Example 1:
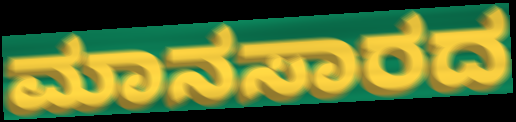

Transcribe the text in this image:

ಮಾನಸಾರದ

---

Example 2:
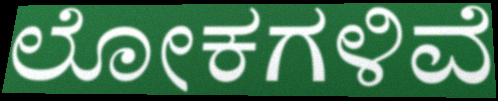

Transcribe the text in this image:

ಲೋಕಗಳಿವೆ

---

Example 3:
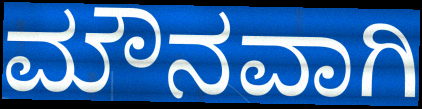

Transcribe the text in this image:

ಮೌನವಾಗಿ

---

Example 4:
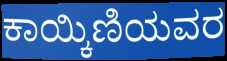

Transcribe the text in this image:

ಕಾಯ್ಕಿಣಿಯವರ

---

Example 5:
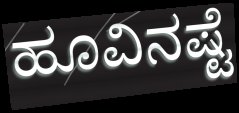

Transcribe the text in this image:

ಹೂವಿನಷ್ಟೆ